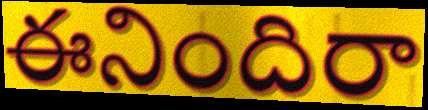
ఈనిందిరా